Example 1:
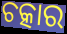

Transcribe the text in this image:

ଚତ୍କାର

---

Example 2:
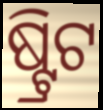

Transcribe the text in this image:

ଷ୍ଟ୍ରିଟ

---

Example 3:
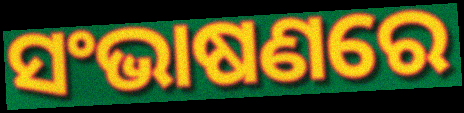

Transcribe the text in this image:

ସଂଭାଷଣରେ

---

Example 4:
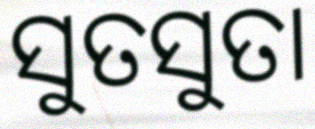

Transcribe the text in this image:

ସୁତସୁତା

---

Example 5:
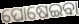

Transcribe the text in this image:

ପୋଷେଇବା